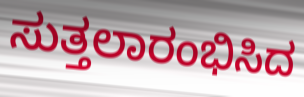
ಸುತ್ತಲಾರಂಭಿಸಿದ